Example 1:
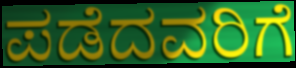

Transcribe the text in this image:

ಪಡೆದವರಿಗೆ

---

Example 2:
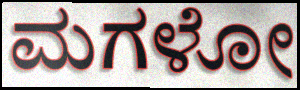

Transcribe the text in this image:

ಮಗಳೋ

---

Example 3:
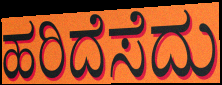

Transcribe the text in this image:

ಹರಿದೆಸೆದು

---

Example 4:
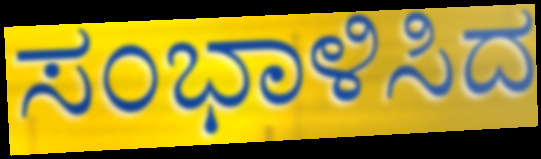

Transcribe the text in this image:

ಸಂಭಾಳಿಸಿದ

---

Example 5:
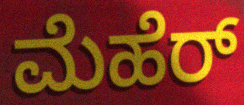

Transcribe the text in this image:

ಮೆಹೆರ್